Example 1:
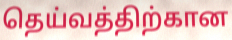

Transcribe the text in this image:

தெய்வத்திற்கான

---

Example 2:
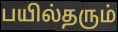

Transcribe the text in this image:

பயில்தரும்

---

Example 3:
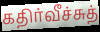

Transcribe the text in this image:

கதிர்வீச்சுத்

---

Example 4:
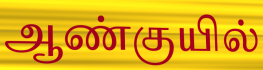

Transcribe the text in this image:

ஆண்குயில்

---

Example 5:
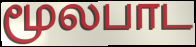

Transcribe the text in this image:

மூலபாட